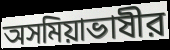
অসমিয়াভাষীর